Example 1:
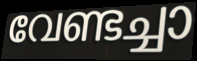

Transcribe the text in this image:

വേണ്ടച്ചാ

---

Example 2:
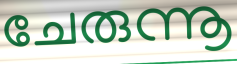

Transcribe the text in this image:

ചേരുന്നൂ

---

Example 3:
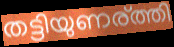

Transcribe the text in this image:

തട്ടിയുണര്ത്തി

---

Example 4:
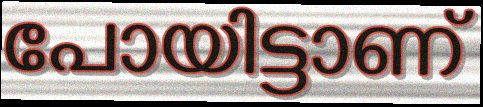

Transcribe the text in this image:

പോയിട്ടാണ്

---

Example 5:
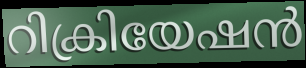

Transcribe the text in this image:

റിക്രിയേഷൻ